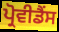
ਪ੍ਰੋਵੀਡੈਂਸ